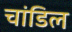
चांडिल